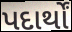
પદાર્થોં